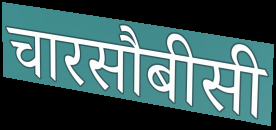
चारसौबीसी